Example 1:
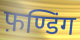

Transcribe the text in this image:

फ़ण्डिंग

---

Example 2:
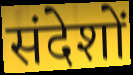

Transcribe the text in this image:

संदेशों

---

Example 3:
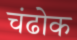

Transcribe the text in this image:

चंढोक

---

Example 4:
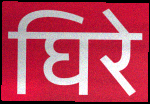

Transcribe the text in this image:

घिरे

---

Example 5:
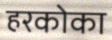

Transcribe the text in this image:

हरकोका